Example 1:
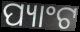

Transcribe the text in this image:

ପ୍ୟାଂଟ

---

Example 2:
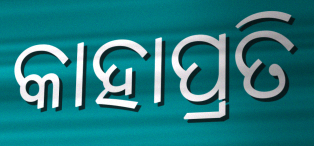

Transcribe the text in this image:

କାହାପ୍ରତି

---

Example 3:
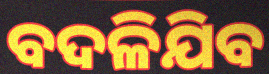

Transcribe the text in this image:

ବଦଳିଯିବ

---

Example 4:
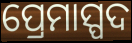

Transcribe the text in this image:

ପ୍ରେମାସ୍ପଦ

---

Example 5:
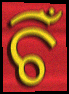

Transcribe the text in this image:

ଚିଁ